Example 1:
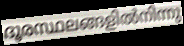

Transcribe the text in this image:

ദൂരസ്ഥലങ്ങളിൽനിന്നു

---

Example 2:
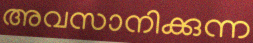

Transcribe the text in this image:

അവസാനിക്കുന്ന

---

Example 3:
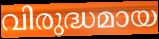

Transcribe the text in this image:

വിരുദ്ധമായ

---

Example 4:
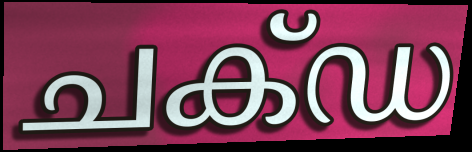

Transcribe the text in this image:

ചക്ഡ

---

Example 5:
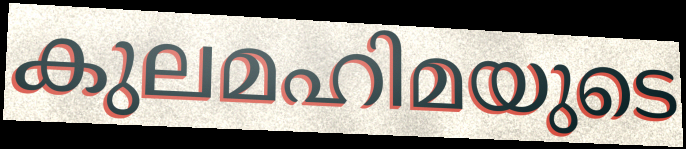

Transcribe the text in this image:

കുലമഹിമയുടെ